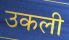
उकली